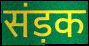
संड़क